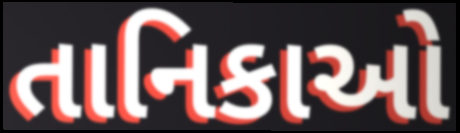
તાનિકાઓ